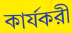
কার্যকরী